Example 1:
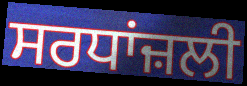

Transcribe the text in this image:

ਸਰਧਾਂਜ਼ਲੀ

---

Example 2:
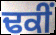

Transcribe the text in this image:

ਢਕੀਂ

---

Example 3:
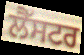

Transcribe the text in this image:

ਲੈੱਸਟਰ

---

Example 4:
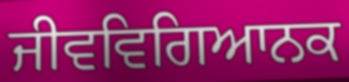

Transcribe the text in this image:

ਜੀਵਵਿਗਿਆਨਕ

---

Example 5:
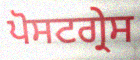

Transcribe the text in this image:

ਪੋਸਟਗ੍ਰੇਸ